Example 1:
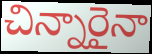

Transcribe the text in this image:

చిన్నారైనా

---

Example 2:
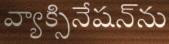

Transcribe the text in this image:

వ్యాక్సినేషన్‌ను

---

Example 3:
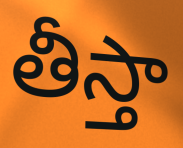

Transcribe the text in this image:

తీస్తా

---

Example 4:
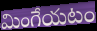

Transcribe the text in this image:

మింగేయటం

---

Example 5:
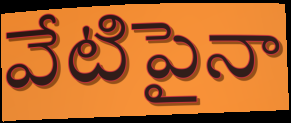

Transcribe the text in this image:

వేటిపైనా